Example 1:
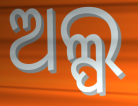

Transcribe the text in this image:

ଅଲ୍ପ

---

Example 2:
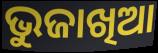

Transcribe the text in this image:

ଭୁଜାଖିଆ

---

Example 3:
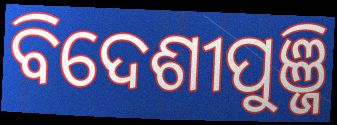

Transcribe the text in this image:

ବିଦେଶୀପୁଞ୍ଜି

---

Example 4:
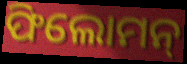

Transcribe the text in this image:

ଫିଲୋମନ୍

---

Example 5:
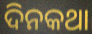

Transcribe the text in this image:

ଦିନକଥା